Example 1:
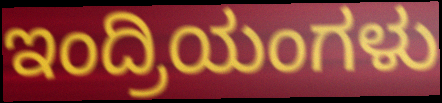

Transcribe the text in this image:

ಇಂದ್ರಿಯಂಗಳು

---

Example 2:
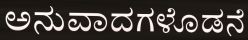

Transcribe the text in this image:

ಅನುವಾದಗಳೊಡನೆ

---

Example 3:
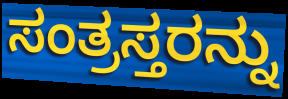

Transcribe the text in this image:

ಸಂತ್ರಸ್ತರನ್ನು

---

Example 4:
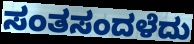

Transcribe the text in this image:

ಸಂತಸಂದಳೆದು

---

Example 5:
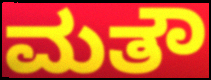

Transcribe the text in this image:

ಮತೌ